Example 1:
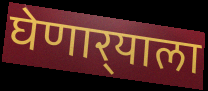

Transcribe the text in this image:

घेणार्‍याला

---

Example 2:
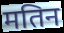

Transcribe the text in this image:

मतिन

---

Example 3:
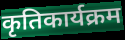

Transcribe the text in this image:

कृतिकार्यक्रम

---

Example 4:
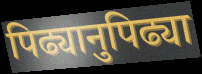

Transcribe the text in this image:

पिढ्यानुपिढ्या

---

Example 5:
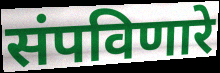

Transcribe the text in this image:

संपविणारे